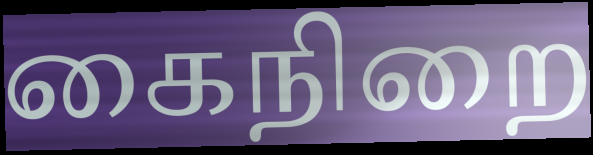
கைநிறை